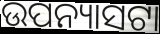
ଉପନ୍ୟାସଟା